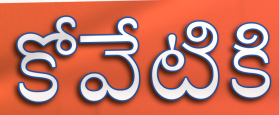
కోవేటికి